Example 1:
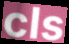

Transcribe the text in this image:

cls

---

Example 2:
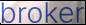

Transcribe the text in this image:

broker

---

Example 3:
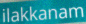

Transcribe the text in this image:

ilakkanam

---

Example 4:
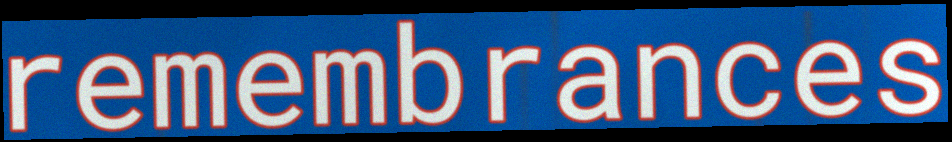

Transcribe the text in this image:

remembrances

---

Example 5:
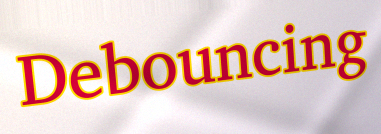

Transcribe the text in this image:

Debouncing